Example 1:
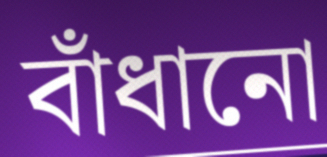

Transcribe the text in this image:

বাঁধানো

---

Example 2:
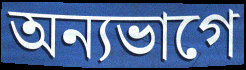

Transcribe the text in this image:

অন্যভাগে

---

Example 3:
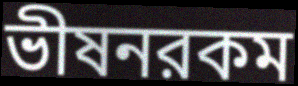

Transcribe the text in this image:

ভীষনরকম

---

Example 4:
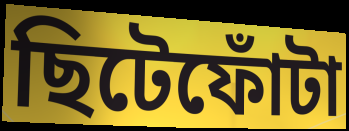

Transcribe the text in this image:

ছিটেফোঁটা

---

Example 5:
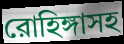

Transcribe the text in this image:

রোহিঙ্গাসহ